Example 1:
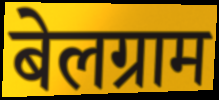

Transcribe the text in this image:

बेलग्राम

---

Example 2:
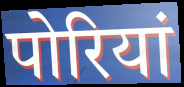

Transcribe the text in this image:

पोरियां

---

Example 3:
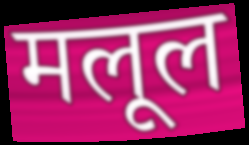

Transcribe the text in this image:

मलूल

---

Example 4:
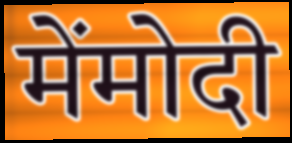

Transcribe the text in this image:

मेंमोदी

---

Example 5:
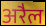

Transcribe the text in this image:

अरैल